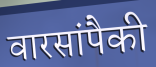
वारसांपैकी